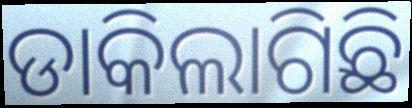
ଡାକିଲାଗିଛି